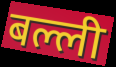
बल्ली